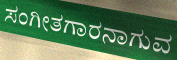
ಸಂಗೀತಗಾರನಾಗುವ